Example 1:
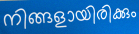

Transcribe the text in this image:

നിങ്ങളായിരിക്കും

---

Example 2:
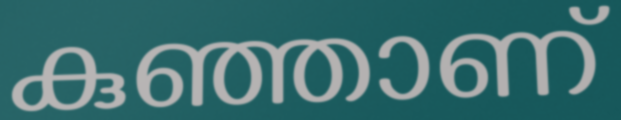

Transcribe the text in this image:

കുഞ്ഞാണ്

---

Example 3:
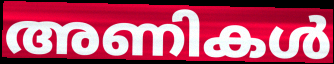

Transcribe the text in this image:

അണികൾ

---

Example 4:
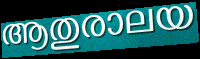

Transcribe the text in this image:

ആതുരാലയ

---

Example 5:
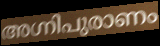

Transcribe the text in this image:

അഗ്നിപുരാണം